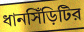
ধানসিঁড়িটির